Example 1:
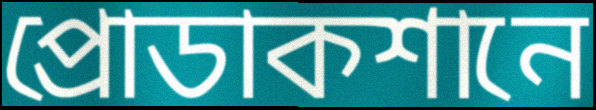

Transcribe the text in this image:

প্রোডাকশানে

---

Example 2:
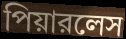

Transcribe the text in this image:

পিয়ারলেস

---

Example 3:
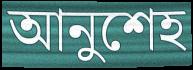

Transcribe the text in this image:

আনুশেহ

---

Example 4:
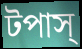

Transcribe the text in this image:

টপাস্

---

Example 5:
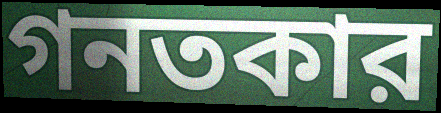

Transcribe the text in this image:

গনতকার